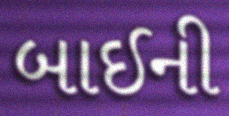
બાઈની